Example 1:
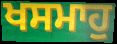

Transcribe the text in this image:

ਖਸਮਾਹੁ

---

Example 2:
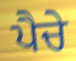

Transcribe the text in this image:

ਪੈਚੇ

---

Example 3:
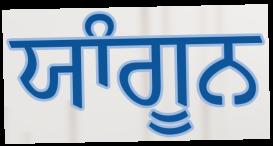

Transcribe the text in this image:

ਯਾੰਗੂਨ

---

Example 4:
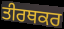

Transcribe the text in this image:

ਤੀਰਥਕਰ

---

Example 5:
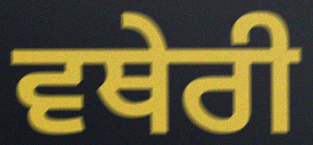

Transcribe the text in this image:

ਵਥੇਰੀ